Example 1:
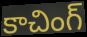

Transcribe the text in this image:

కాచింగ్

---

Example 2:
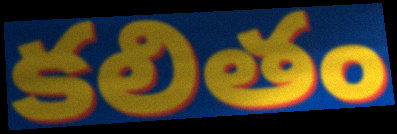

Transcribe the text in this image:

కలితం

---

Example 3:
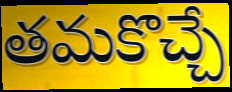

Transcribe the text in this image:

తమకొచ్చే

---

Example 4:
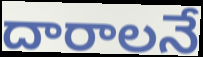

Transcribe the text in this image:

దారాలనే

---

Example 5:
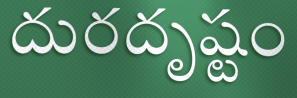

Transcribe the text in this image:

దురదృష్టం